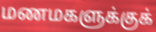
மணமகளுக்குக்